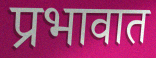
प्रभावात